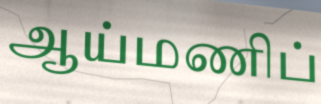
ஆய்மணிப்